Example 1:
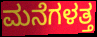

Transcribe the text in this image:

ಮನೆಗಳತ್ತ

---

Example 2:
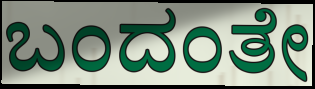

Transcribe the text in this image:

ಬಂದಂತೇ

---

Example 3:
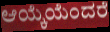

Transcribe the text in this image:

ಆಯ್ಕೆಯೆಂದರೆ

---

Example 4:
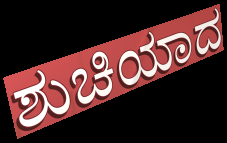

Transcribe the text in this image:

ಶುಚಿಯಾದ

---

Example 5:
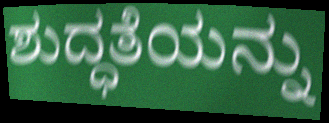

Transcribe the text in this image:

ಶುದ್ಧತೆಯನ್ನು